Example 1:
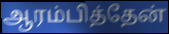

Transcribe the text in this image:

ஆரம்பித்தேன்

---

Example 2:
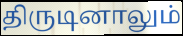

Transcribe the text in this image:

திருடினாலும்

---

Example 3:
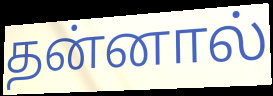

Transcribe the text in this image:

தன்னால்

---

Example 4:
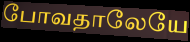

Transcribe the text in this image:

போவதாலேயே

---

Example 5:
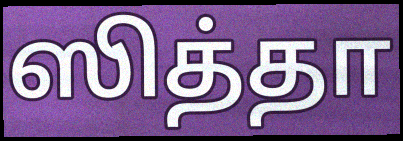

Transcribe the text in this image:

ஸித்தா